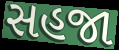
સહજા